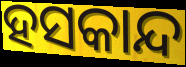
ହସକାନ୍ଦ